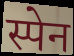
स्पेन